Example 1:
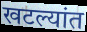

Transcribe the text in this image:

खटल्यांत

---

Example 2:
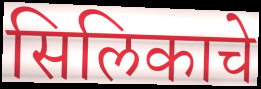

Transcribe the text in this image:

सिलिकाचे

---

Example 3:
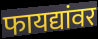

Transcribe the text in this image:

फायद्यांवर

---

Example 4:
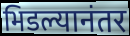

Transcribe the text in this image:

भिडल्यानंतर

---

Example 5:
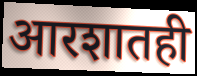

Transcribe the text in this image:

आरशातही